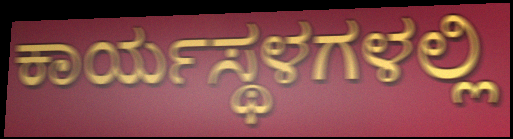
ಕಾರ್ಯಸ್ಥಳಗಳಲ್ಲಿ